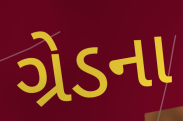
ગ્રેડના